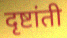
दृष्टांती